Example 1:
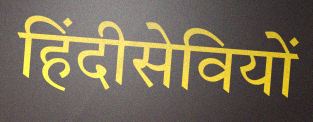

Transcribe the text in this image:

हिंदीसेवियों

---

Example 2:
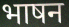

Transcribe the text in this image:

भाषन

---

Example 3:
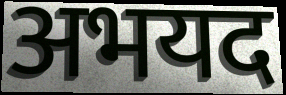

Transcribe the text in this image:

अभयद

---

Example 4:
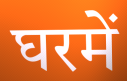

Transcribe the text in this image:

घरमें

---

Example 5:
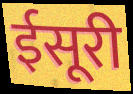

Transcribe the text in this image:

ईसूरी